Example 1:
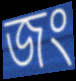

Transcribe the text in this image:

জং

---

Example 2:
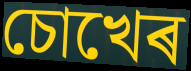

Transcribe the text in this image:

চোখেৰ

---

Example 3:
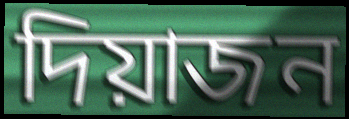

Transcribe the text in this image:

দিয়াজন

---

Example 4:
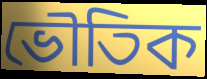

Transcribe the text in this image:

ভৌতিক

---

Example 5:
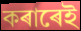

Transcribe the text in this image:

কৰাৰেই